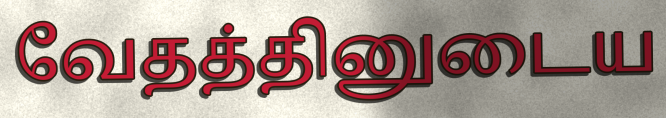
வேதத்தினுடைய